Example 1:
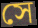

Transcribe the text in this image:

সে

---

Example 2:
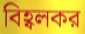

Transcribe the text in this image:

বিহ্বলকর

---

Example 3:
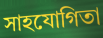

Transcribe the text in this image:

সাহযোগিতা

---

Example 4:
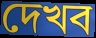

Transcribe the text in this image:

দেখব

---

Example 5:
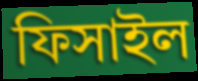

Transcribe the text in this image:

ফিসাইল